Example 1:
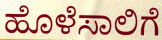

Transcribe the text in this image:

ಹೊಳೆಸಾಲಿಗೆ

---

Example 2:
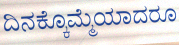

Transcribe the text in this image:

ದಿನಕ್ಕೊಮ್ಮೆಯಾದರೂ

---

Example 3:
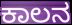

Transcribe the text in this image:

ಕಾಲನ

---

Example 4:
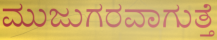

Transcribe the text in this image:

ಮುಜುಗರವಾಗುತ್ತೆ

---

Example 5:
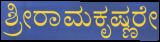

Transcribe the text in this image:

ಶ್ರೀರಾಮಕೃಷ್ಣರೇ